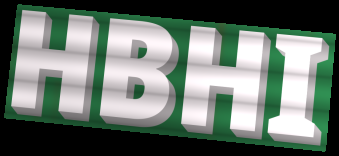
HBHI